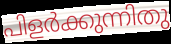
പിളർക്കുന്നിതു